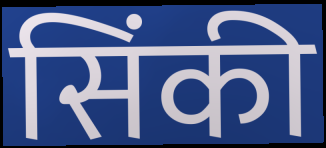
सिंकी